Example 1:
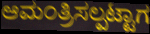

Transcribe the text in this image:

ಆಮಂತ್ರಿಸಲ್ಪಟ್ಟಾಗ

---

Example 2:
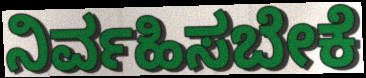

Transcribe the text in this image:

ನಿರ್ವಹಿಸಬೇಕೆ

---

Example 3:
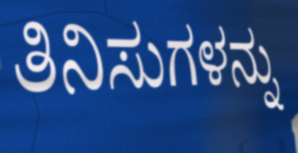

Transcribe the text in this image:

ತಿನಿಸುಗಳನ್ನು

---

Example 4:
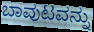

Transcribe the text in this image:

ಬಾವುಟವನ್ನು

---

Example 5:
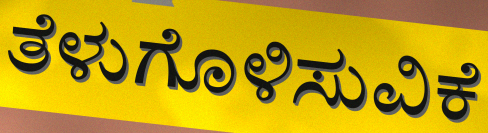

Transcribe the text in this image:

ತೆಳುಗೊಳಿಸುವಿಕೆ